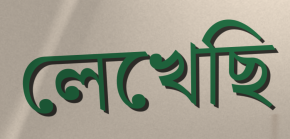
লেখেছি